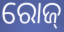
ରୋଜ୍